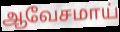
ஆவேசமாய்